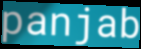
panjab